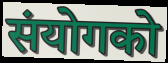
संयोगको